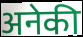
अनेकी